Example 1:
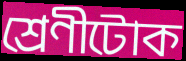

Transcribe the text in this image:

শ্ৰেণীটোক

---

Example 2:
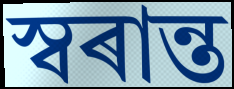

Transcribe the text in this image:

স্বৰান্ত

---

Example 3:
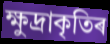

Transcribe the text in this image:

ক্ষুদ্ৰাকৃতিৰ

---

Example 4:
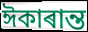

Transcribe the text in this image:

ঈকাৰান্ত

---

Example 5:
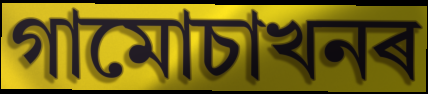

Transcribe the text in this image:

গামোচাখনৰ